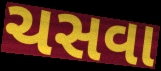
ચસવા